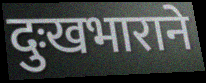
दुःखभाराने